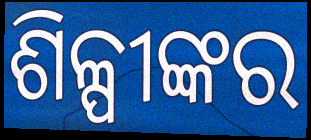
ଶିଳ୍ପୀଙ୍କର